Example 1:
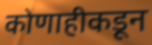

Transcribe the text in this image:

कोणाहीकडून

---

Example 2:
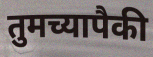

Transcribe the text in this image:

तुमच्यापैकी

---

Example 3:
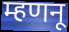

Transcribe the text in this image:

म्हणनू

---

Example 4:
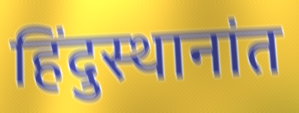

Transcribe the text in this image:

हिंदुस्थानांत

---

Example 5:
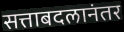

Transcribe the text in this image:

सत्ताबदलानंतर